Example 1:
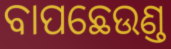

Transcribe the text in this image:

ବାପଛେଉଣ୍ଡ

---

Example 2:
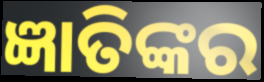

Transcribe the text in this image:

ଜ୍ଞାତିଙ୍କର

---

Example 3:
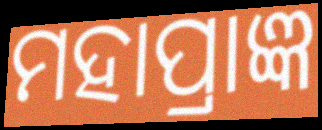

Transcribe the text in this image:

ମହାପ୍ରାଜ୍ଞ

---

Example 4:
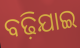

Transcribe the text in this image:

ବଢ଼ିଯାଇ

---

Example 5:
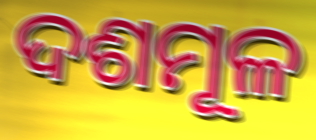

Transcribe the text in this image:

ଦଶମୂଳ